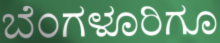
ಬೆಂಗಳೂರಿಗೂ